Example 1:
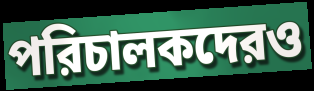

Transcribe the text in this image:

পরিচালকদেরও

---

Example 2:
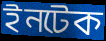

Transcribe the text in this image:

ইনটেক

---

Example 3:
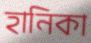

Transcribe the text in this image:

হানিকা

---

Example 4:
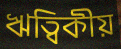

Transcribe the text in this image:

ঋত্বিকীয়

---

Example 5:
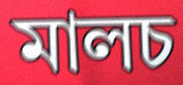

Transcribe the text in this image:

মালচ